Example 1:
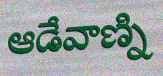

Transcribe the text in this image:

ఆడేవాణ్ని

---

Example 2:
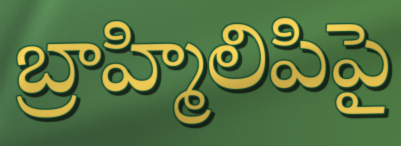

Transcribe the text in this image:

బ్రాహ్మిలిపిపై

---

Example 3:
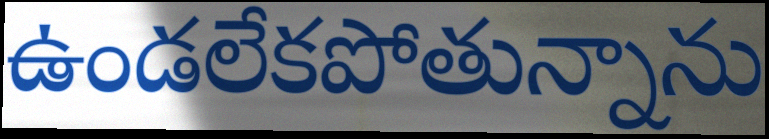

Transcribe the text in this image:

ఉండలేకపోతున్నాను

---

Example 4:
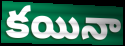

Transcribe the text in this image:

కయినా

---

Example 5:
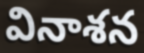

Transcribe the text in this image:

వినాశన